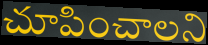
చూపించాలని